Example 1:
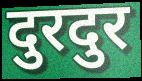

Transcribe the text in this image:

दुरदुर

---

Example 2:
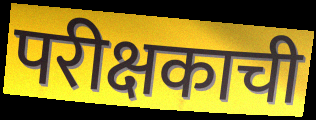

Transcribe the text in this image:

परीक्षकाची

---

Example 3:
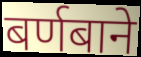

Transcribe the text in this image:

बर्णबाने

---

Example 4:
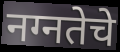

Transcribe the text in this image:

नग्नतेचे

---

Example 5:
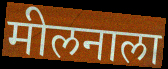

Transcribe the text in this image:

मीलनाला